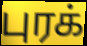
புரக்